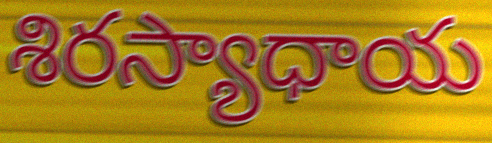
శిరస్యాధాయ